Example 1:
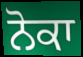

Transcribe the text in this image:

ਨੋਕਾ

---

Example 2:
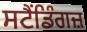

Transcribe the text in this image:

ਸਟੈਂਡਿੰਗਜ਼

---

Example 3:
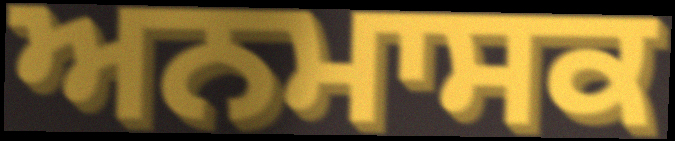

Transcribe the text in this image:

ਅਨਮਾਸਕ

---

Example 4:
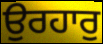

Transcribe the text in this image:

ਉਰਹਾਰੁ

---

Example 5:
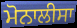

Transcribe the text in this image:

ਮੋਨਾਲੀਸਾ